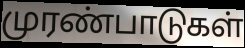
முரண்பாடுகள்